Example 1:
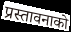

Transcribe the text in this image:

प्रस्तावनाको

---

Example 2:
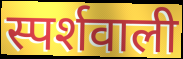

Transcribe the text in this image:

स्पर्शवाली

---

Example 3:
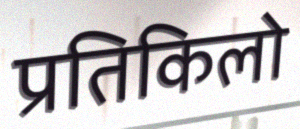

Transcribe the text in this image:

प्रतिकिलो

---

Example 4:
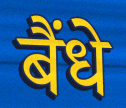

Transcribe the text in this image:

बैंधे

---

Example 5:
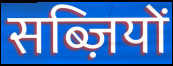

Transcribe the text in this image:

सब्ज़ियों